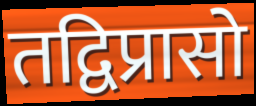
तद्विप्रासो